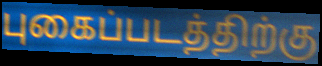
புகைப்படத்திற்கு